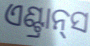
ଏଣ୍ଟ୍ରାନ୍‍ସ